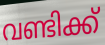
വണ്ടിക്ക്